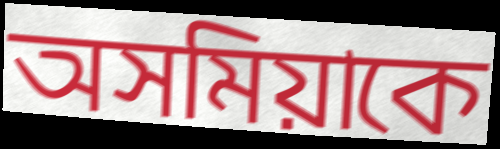
অসমিয়াকে